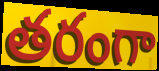
తరంగా